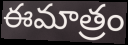
ఈమాత్రం